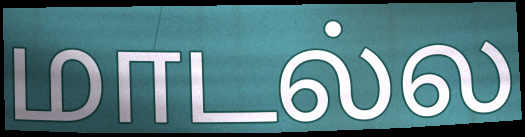
மாடல்ல